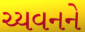
ચ્યવનને